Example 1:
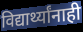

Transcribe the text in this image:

विद्यार्थ्यांनाही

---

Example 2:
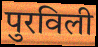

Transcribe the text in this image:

पुरविली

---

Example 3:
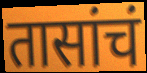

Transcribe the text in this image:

तासांचं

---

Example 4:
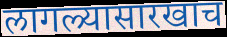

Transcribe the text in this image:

लागल्यासारखाच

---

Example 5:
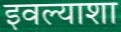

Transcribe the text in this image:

इवल्याशा